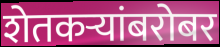
शेतकर्‍यांबरोबर